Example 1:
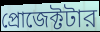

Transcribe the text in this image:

প্রোজেক্টটার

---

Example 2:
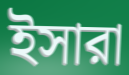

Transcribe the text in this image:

ইসারা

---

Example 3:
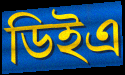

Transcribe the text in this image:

ডিইএ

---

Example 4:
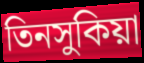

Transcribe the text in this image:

তিনসুকিয়া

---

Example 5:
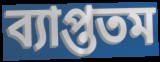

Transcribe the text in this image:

ব্যাপ্ততম